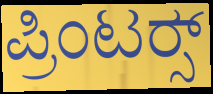
ಪ್ರಿಂಟರ‍್ಸ್